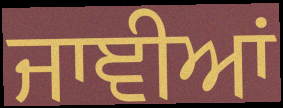
ਜਾਞੀਆਂ